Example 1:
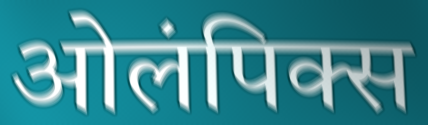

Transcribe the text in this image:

ओलंपिक्‍स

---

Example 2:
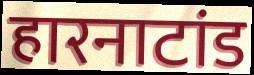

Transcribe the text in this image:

हारनाटांड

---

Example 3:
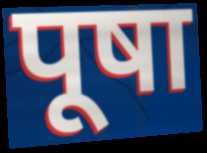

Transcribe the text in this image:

पूषा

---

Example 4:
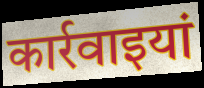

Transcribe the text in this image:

कार्रवाइयां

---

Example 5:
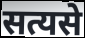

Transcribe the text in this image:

सत्यसे